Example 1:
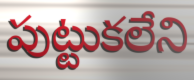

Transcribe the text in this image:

పుట్టుకలేని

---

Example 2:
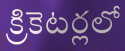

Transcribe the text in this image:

క్రికెటర్లలో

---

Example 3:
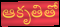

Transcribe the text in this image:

ఆకృతితో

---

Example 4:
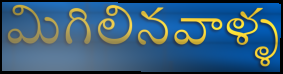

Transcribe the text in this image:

మిగిలినవాళ్ళ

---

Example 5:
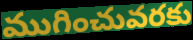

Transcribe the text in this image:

ముగించువరకు